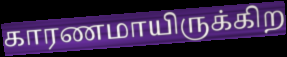
காரணமாயிருக்கிற